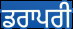
ਡਰਾਪਰੀ